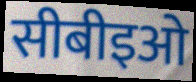
सीबीइओ